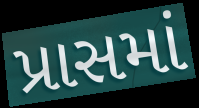
પ્રાસમાં